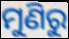
ମୁଣିରୁ